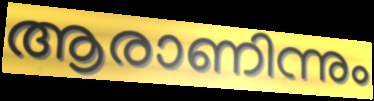
ആരാണിന്നും